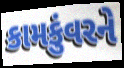
કામકુંવરને